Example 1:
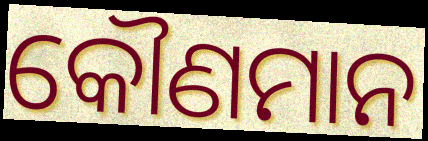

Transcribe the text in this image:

କୌଣମାନ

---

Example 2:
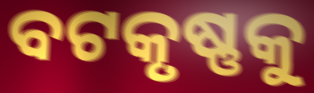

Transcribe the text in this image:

ବଟକୃଷ୍ଣକୁ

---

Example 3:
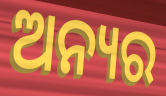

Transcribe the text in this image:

ଅନ୍ୟର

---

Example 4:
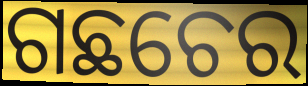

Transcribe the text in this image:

ଗଛଚେର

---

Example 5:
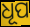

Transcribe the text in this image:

ଧୂପ